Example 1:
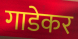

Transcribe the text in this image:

गाडेकर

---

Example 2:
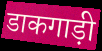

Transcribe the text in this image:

डाकगाड़ी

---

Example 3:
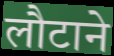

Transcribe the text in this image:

लौटाने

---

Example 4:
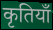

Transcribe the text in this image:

कृतियाँ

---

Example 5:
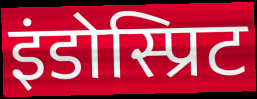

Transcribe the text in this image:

इंडोस्प्रिट